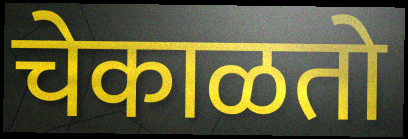
चेकाळतो